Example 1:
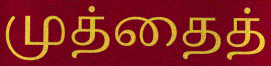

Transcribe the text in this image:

முத்தைத்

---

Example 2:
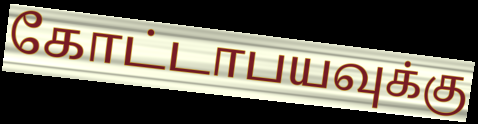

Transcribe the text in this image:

கோட்டாபயவுக்கு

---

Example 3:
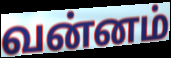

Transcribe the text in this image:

வன்னம்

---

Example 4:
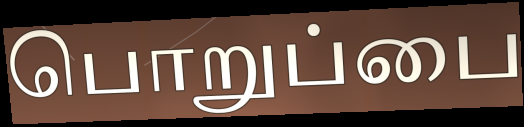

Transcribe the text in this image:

பொறுப்பை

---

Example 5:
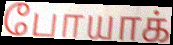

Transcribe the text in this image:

போயாக்